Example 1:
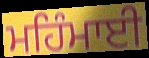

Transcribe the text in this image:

ਮਹਿੰਮਾਈ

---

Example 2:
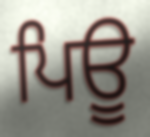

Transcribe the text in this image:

ਪਿਊ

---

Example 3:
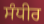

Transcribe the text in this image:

ਸੰਧੀਰ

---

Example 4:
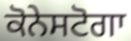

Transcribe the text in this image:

ਕੋਨੇਸਟੋਗਾ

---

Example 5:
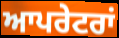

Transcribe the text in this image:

ਆਪਰੇਟਰਾਂ